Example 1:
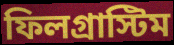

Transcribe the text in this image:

ফিলগ্রাস্টিম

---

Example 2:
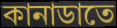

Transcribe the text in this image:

কানাডাতে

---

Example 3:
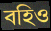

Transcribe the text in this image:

বহিও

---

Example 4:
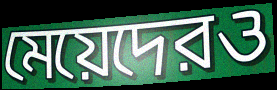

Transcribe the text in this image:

মেয়েদেরও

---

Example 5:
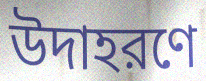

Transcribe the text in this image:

উদাহরণে